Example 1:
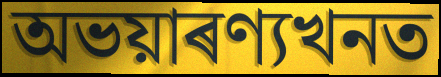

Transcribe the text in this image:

অভয়াৰণ্যখনত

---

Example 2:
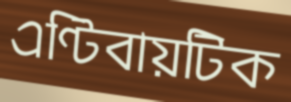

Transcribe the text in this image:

এণ্টিবায়টিক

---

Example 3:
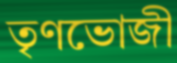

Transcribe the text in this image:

তৃণভোজী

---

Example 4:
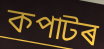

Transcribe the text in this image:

কপাটৰ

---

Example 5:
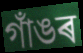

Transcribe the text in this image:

গাঁঙৰ